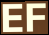
EF